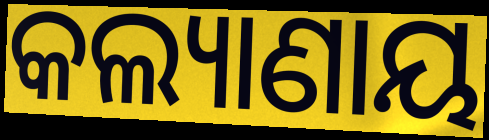
କଲ୍ୟାଣାୟ